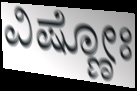
ವಿಷ್ಣೋಃ